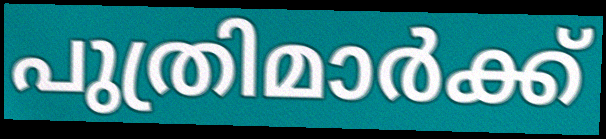
പുത്രിമാർക്ക്